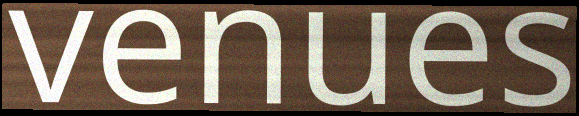
venues